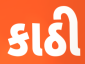
કાઠી